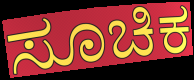
ಸೂಚಿಕ